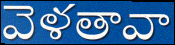
వెళతావా